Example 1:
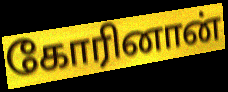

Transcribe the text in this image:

கோரினான்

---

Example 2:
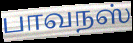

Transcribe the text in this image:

பாவநஸ்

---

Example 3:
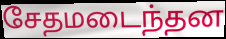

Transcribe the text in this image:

சேதமடைந்தன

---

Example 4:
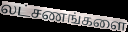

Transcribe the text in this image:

லட்சணங்களை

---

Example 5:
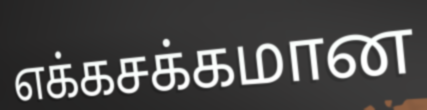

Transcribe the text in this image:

எக்கசக்கமான